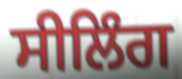
ਸੀਲਿੰਗ